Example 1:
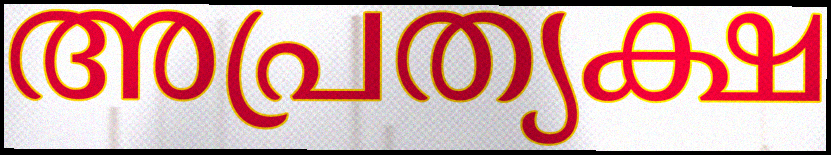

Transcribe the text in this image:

അപ്രത്യക്ഷ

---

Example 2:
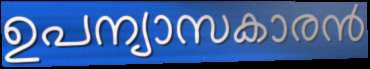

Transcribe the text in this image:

ഉപന്യാസകാരൻ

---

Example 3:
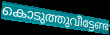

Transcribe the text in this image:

കൊടുത്തുവീട്ടേണ്ട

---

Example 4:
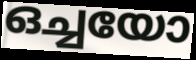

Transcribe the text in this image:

ഒച്ചയോ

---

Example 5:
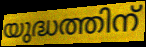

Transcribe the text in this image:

യുദ്ധത്തിന്